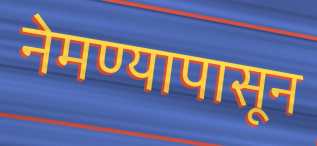
नेमण्यापासून